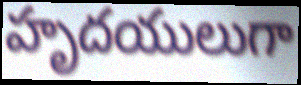
హృదయులుగా